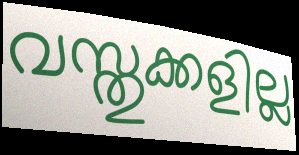
വസ്തുക്കളില്ല